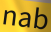
nab